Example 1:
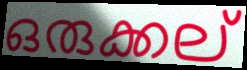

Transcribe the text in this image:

ഒരുക്കല്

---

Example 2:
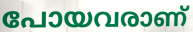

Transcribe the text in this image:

പോയവരാണ്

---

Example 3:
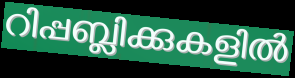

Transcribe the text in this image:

റിപ്പബ്ലിക്കുകളിൽ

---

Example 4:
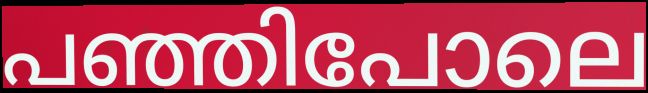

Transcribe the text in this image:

പഞ്ഞിപോലെ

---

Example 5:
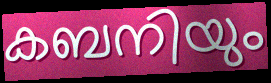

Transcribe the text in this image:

കബനിയും